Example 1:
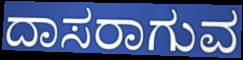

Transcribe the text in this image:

ದಾಸರಾಗುವ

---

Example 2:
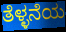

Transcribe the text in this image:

ತೆಳ್ಳನೆಯ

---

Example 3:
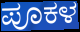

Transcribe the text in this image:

ಪೂಕಳ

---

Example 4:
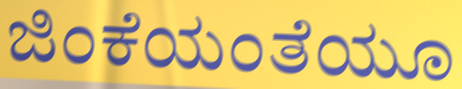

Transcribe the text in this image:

ಜಿಂಕೆಯಂತೆಯೂ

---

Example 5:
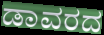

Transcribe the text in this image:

ಡಾವರದ